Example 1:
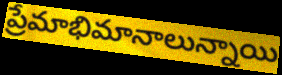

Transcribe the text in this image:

ప్రేమాభిమానాలున్నాయి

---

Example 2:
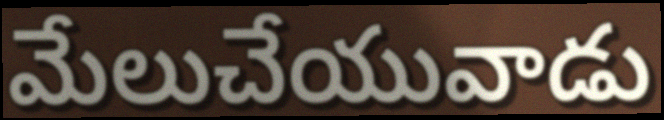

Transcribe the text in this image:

మేలుచేయువాడు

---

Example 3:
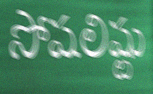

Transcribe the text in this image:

సోషలిష్టు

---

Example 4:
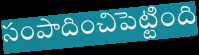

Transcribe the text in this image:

సంపాదించిపెట్టింది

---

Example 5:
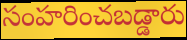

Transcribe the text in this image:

సంహరించబడ్డారు